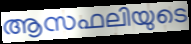
ആസഫലിയുടെ